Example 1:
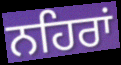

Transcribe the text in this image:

ਨਹਿਰਾਂ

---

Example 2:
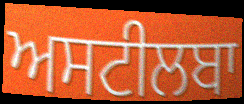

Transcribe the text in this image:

ਅਸਟੀਲਬਾ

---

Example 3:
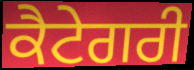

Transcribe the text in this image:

ਕੈਟੇਗਰੀ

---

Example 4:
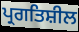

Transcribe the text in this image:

ਪ੍ਰਗਤਿਸ਼ੀਲ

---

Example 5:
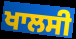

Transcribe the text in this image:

ਖਾਲਸੀ